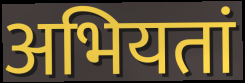
अभियतां